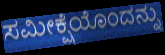
ಸಮೀಕ್ಷೆಯೊಂದನ್ನು